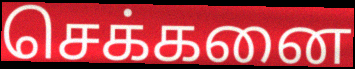
செக்கனை